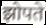
झोपते